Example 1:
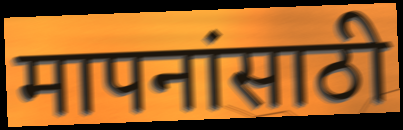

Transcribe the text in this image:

मापनांसाठी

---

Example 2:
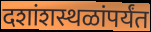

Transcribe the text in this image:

दशांशस्थळांपर्यंत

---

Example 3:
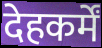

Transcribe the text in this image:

देहकर्में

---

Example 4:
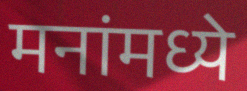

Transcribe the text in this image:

मनांमध्ये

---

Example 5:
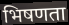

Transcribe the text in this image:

भिषणता